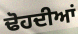
ਢੋਹਦੀਆਂ